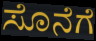
ಸೊನೆಗೆ